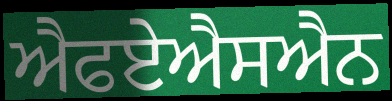
ਐਫਏਐਸਐਨ